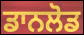
ਡਾਨਲੋਡ